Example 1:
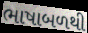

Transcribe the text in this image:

ભાષાબળથી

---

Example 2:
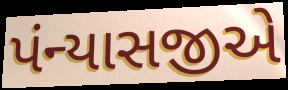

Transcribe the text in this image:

પંન્યાસજીએ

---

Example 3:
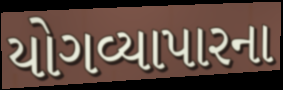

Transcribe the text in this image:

યોગવ્યાપારના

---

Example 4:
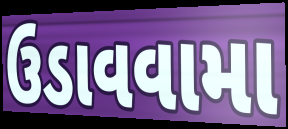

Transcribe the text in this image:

ઉડાવવામા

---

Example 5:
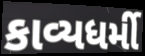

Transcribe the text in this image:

કાવ્યધર્મી